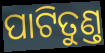
ପାଟିତୁଣ୍ତ